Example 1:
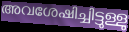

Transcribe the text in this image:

അവശേഷിച്ചിട്ടുള്ളു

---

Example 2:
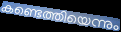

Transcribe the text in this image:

കണ്ടെത്തിയെന്നും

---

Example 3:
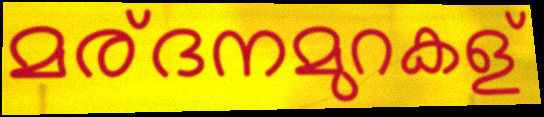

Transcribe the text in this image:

മര്ദനമുറകള്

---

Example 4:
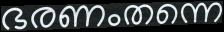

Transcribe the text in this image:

ഭരണംതന്നെ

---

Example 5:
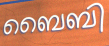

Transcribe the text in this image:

ബൈബി